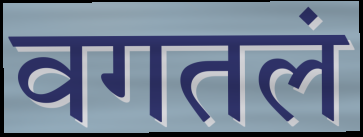
वगतलं